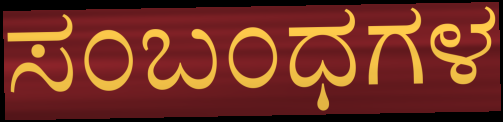
ಸಂಬಂಧಗಳ